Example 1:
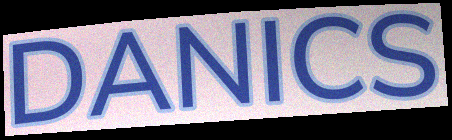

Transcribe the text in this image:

DANICS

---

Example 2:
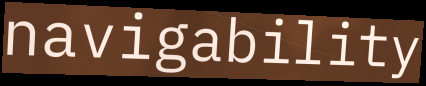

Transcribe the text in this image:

navigability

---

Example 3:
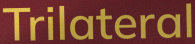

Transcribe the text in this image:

Trilateral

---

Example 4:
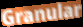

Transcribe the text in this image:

Granular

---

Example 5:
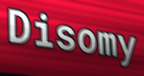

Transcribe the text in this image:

Disomy